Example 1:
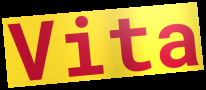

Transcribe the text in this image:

Vita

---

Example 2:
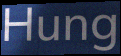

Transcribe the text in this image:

Hung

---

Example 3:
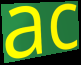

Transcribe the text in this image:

ac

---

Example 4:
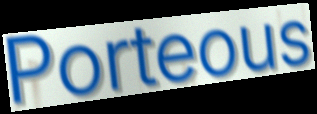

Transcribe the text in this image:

Porteous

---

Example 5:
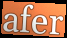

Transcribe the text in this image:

afer